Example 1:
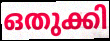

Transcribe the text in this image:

ഒതുക്കി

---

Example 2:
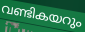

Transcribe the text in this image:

വണ്ടികയറും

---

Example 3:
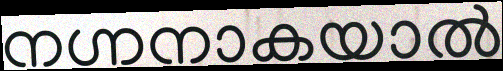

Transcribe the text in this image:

നഗ്നനാകയാൽ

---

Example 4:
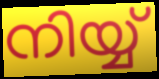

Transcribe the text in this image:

നിയ്യ്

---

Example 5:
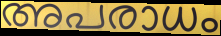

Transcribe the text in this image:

അപരാധം